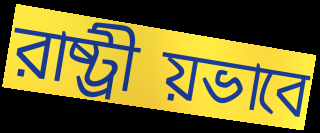
রাষ্ট্রীয়ভাবে